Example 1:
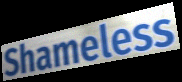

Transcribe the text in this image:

Shameless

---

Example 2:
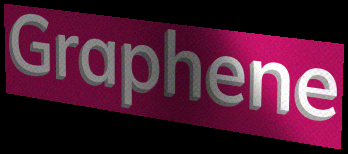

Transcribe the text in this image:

Graphene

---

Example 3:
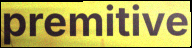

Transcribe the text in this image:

premitive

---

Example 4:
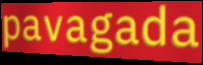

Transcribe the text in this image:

pavagada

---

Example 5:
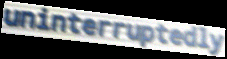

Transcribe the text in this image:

uninterruptedly